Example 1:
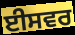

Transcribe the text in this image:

ਈਸਵਰ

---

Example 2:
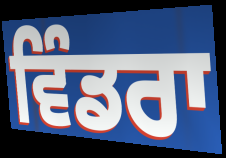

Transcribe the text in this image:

ਵਿੰਡਰਾ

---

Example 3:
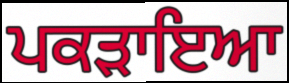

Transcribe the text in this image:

ਪਕੜਾਇਆ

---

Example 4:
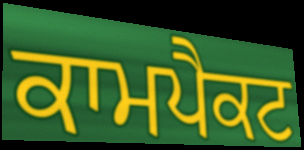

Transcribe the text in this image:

ਕਾਮਪੈਕਟ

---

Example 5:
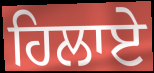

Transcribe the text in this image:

ਹਿਲਾਏ